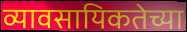
व्यावसायिकतेच्या